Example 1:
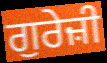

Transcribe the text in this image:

ਗੁਰੇਜ਼ੀ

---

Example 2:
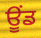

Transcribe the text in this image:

ਊਂਡ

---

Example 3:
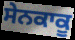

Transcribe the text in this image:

ਸੇਨਕਾਕੂ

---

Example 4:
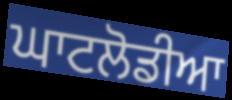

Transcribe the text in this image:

ਘਾਟਲੋਡੀਆ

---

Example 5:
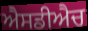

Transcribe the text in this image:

ਐਸਡੀਐਚ